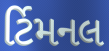
ર્ટિમનલ